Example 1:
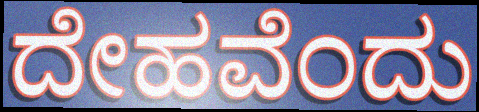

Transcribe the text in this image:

ದೇಹವೆಂದು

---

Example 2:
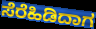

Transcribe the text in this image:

ಸೆರೆಹಿಡಿದಾಗ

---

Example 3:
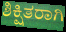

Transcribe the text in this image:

ಶಿಕ್ಷಿತರಾಗಿ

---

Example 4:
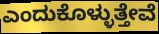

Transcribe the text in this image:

ಎಂದುಕೊಳ್ಳುತ್ತೇವೆ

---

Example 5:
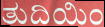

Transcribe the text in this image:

ತುದಿಯಿಂ